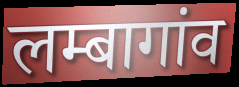
लम्बागांव